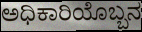
ಅಧಿಕಾರಿಯೊಬ್ಬನ